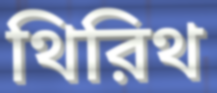
থিরিথ